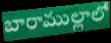
బారాముల్లాలో